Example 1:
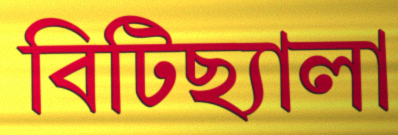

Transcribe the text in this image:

বিটিছ্যালা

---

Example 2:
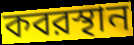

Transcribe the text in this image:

কবরস্থান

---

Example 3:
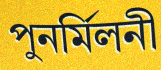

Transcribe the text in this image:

পুনর্মিলনী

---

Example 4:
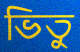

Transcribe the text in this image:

ভিতু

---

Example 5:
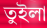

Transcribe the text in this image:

তুইলা